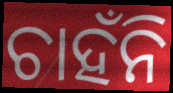
ଚାହଁନି